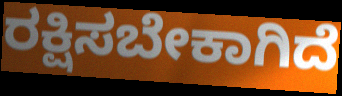
ರಕ್ಷಿಸಬೇಕಾಗಿದೆ